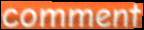
comment